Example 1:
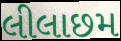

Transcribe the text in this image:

લીલાછમ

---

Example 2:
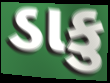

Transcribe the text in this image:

ડાકુ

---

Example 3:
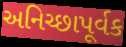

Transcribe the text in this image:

અનિચ્છાપૂર્વક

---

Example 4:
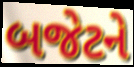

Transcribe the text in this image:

બજેટને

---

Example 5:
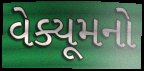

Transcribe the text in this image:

વેક્યૂમનો